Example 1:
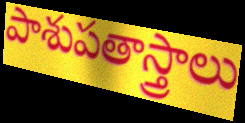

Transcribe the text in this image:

పాశుపతాస్త్రాలు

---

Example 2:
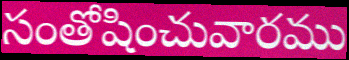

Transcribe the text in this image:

సంతోషించువారము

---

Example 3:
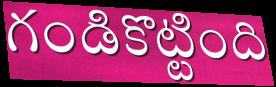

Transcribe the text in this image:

గండికొట్టింది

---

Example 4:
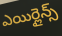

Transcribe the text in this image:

ఎయిర్లైన్స్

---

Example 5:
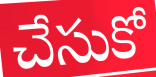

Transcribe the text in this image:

చేసుకో